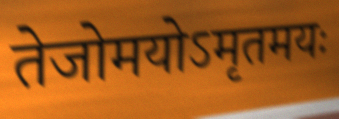
तेजोमयोऽमृतमयः